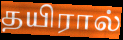
தயிரால்